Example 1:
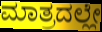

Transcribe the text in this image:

ಮಾತ್ರದಲ್ಲೇ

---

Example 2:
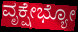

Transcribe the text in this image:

ವೃಕ್ಷೇಭ್ಯೋ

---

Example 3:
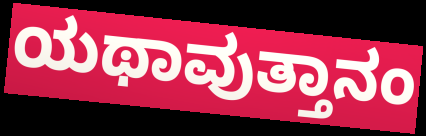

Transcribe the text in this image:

ಯಥಾವುತ್ತಾನಂ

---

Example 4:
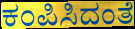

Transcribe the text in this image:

ಕಂಪಿಸಿದಂತೆ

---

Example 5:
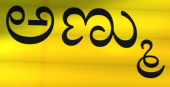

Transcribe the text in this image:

ಅಣ್ಮು